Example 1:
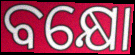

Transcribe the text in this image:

ବକ୍ଷୋ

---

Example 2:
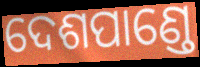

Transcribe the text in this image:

ଦେଶପାଣ୍ଡେ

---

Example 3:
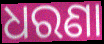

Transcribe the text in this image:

ଧରଣା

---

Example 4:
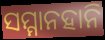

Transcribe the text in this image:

ସମ୍ମାନହାନି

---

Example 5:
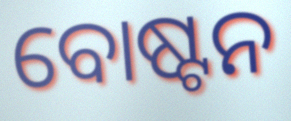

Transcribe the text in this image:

ବୋଷ୍ଟନ